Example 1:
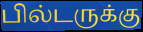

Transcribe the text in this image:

பில்டருக்கு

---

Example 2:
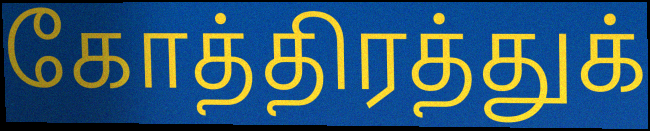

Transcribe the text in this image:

கோத்திரத்துக்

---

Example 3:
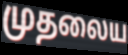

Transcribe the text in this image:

முதலைய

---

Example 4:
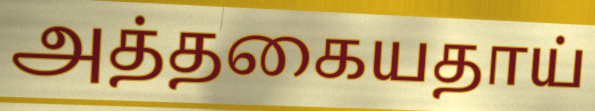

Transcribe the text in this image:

அத்தகையதாய்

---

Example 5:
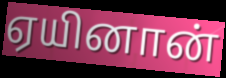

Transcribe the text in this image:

ஏயினான்